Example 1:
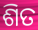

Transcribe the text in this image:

ଶିତ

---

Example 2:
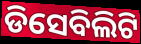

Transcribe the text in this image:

ଡିସେବିଲିଟି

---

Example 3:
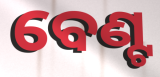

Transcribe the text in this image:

ବେଣ୍ଟ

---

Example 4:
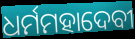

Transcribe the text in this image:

ଧର୍ମମହାଦେବୀ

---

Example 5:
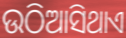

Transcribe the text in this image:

ଉଠିଆସିଥାଏ